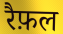
रैफ़ल